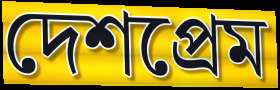
দেশপ্রেম